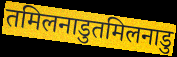
तमिलनाडुतमिलनाडु